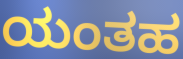
ಯಂತಹ